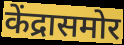
केंद्रासमोर